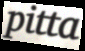
pitta